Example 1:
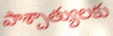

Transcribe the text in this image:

పాశ్చాత్యులకు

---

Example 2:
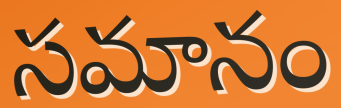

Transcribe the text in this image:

సమానం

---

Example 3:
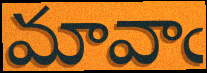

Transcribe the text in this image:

మావాఁ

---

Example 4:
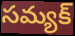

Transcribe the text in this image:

సమ్యక్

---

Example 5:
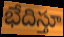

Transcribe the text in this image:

భేదిస్తూ